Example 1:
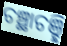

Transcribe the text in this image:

ଚଞ୍ଛାଚଞ୍ଛି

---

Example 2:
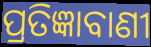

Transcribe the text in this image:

ପ୍ରତିଜ୍ଞାବାଣୀ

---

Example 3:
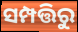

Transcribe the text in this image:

ସମ୍ପତ୍ତିରୁ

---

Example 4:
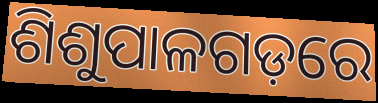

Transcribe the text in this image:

ଶିଶୁପାଳଗଡ଼ରେ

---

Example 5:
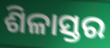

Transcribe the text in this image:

ଶିଳାସ୍ତର